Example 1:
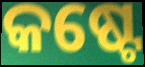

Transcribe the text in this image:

କଷ୍ଟେ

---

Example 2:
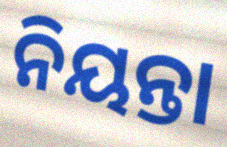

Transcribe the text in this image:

ନିୟନ୍ତା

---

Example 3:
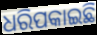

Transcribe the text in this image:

ଧରିପକାଇଛି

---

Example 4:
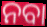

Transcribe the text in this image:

ନବା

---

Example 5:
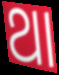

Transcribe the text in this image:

ଥା